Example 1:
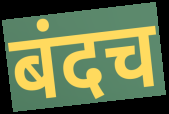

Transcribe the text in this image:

बंदच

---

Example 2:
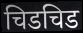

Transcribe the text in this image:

चिडचिड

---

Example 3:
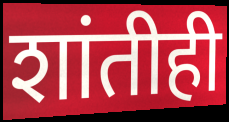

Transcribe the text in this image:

शांतीही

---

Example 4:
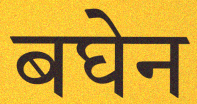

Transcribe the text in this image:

बघेन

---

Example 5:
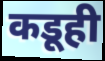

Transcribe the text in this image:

कडूही